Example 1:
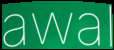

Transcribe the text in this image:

awal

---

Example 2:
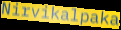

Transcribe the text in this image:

Nirvikalpaka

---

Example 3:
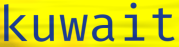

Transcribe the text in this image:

kuwait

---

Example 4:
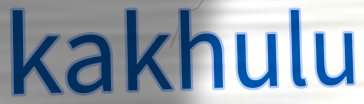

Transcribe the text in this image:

kakhulu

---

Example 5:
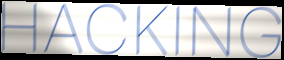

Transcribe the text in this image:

HACKING